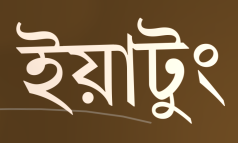
ইয়াটুং